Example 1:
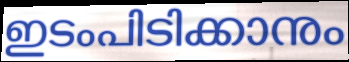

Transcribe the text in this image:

ഇടംപിടിക്കാനും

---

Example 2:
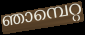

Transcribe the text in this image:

ഞാമ്പെറ്റ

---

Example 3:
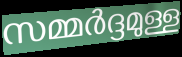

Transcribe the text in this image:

സമ്മർദ്ദമുള്ള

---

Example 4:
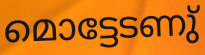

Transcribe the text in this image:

മൊട്ടേടണു്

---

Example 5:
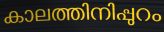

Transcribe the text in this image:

കാലത്തിനിപ്പുറം